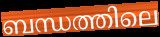
ബന്ധത്തിലെ